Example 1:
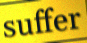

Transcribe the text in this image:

suffer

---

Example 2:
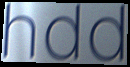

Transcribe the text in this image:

hdd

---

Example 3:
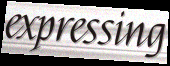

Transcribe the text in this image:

expressing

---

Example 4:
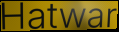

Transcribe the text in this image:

Hatwar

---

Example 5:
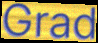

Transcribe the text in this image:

Grad